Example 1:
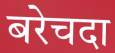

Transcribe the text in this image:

बरेचदा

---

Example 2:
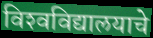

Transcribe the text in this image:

विश्वविद्यालयाचे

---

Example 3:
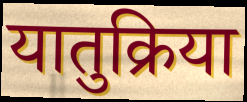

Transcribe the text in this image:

यातुक्रिया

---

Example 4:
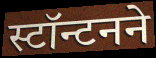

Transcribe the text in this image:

स्टॉन्टनने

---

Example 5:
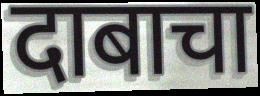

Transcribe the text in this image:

दाबाचा